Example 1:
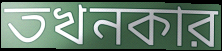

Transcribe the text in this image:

তখনকার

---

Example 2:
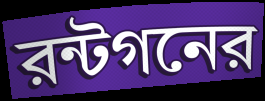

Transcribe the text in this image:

রন্টগনের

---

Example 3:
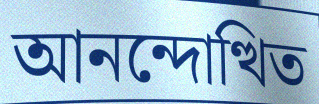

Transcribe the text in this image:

আনন্দোত্থিত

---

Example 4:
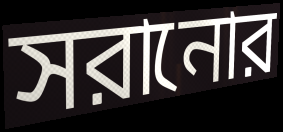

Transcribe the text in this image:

সরানোর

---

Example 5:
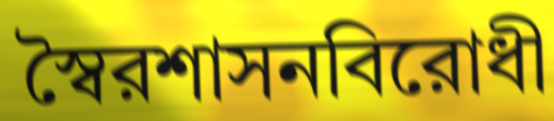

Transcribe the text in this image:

স্বৈরশাসনবিরোধী